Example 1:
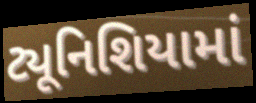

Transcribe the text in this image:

ટ્યૂનિશિયામાં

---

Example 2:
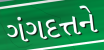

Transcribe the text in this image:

ગંગદત્તને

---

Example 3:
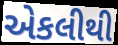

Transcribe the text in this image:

એકલીથી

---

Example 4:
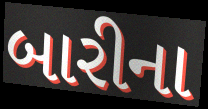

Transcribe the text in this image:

બારીના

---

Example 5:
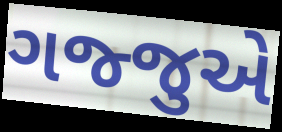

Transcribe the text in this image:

ગજ્જુએ